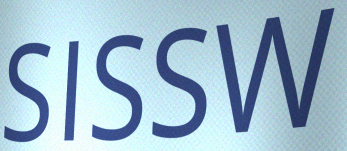
SISSW